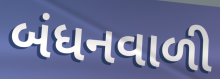
બંધનવાળી